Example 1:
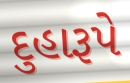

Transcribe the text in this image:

દુહારૂપે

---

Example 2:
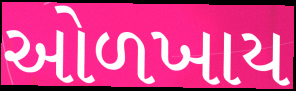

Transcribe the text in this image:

ઓળખાય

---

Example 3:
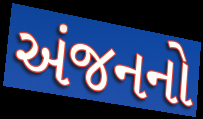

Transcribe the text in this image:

અંજનનો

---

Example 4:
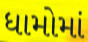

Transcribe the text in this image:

ધામોમાં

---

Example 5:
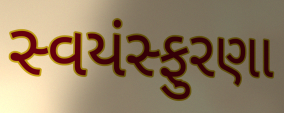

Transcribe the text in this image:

સ્વયંસ્ફુરણા